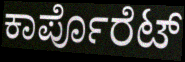
ಕಾರ್ಪೊರೆಟ್